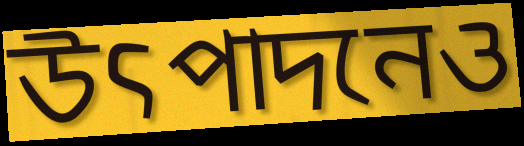
উৎপাদনেও